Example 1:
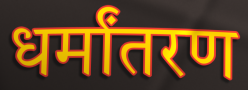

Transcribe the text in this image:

धर्मांतरण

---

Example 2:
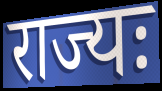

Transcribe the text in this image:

राज्यः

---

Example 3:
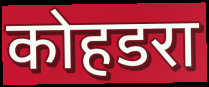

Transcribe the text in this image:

कोहडरा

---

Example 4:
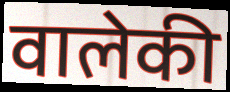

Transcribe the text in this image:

वालेकी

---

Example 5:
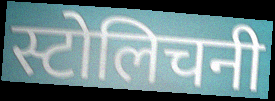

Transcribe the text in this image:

स्टोलिचनी